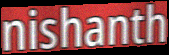
nishanth